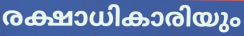
രക്ഷാധികാരിയും